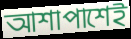
আশাপাশেই